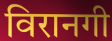
विरानगी